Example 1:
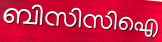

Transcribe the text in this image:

ബിസിസിഐ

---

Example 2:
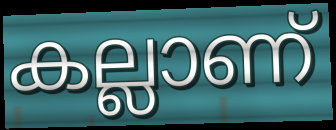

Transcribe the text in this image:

കല്ലാണ്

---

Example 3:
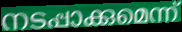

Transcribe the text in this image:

നടപ്പാക്കുമെന്ന്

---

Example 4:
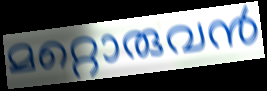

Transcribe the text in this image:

മറ്റൊരുവൻ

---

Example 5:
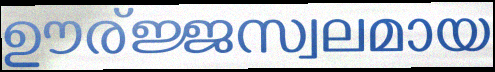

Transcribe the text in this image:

ഊര്ജ്ജസ്വലമായ